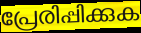
പ്രേരിപ്പിക്കുക